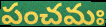
పంచమః